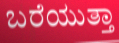
ಬರೆಯುತ್ತಾ